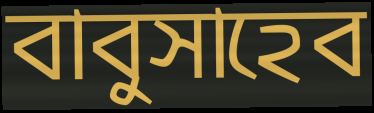
বাবুসাহেব